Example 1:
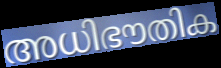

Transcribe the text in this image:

അധിഭൗതിക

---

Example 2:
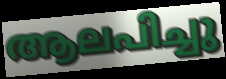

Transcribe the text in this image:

ആലപിച്ചു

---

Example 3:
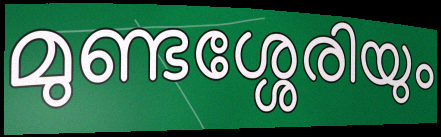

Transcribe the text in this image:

മുണ്ടശ്ശേരിയും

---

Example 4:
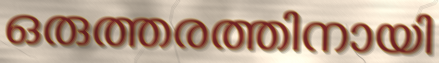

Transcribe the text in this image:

ഒരുത്തരത്തിനായി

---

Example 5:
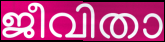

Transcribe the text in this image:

ജീവിതാ